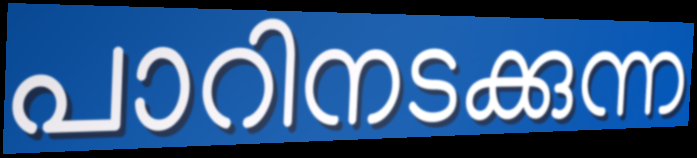
പാറിനടക്കുന്ന